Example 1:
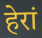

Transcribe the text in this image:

हेरां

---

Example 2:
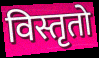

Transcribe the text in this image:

विस्तृतो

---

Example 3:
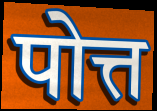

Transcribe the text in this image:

पोत्त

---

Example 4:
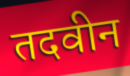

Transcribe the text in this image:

तदवीन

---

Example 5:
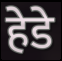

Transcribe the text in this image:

हेडे